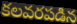
కలవరపడిన